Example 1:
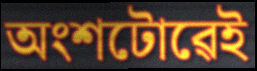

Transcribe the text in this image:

অংশটোৱেই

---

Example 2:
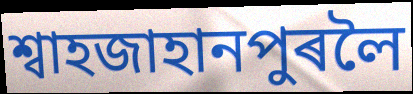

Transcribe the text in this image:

শ্বাহজাহানপুৰলৈ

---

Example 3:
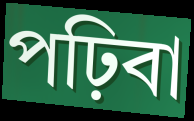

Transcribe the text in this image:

পঢ়িবা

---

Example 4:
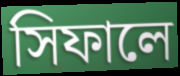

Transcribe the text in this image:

সিফালে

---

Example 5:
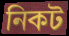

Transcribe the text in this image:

নিকট